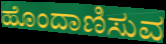
ಹೊಂದಾಣಿಸುವ